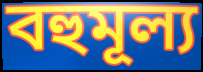
বহুমূল্য